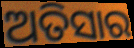
ଅତିସାର